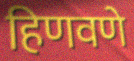
हिणवणे